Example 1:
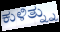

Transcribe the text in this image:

ಕುಳಿತ್ನ್ನು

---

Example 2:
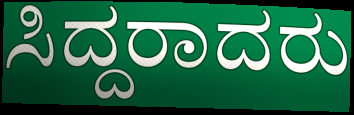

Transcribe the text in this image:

ಸಿದ್ದರಾದರು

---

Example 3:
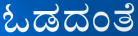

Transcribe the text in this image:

ಓಡದಂತೆ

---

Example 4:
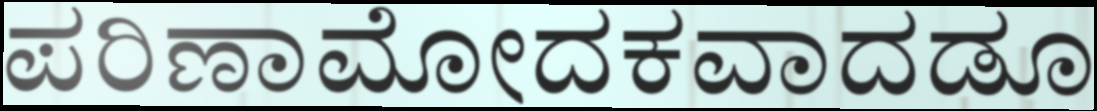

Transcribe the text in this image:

ಪರಿಣಾಮೋದಕವಾದಡೂ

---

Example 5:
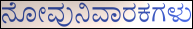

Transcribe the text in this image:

ನೋವುನಿವಾರಕಗಳು